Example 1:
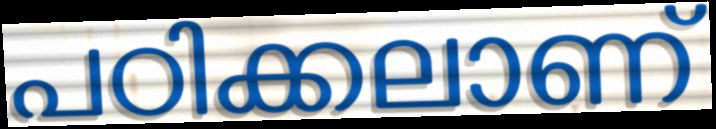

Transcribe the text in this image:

പഠിക്കലാണ്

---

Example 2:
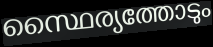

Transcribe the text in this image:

സ്ഥൈര്യത്തോടും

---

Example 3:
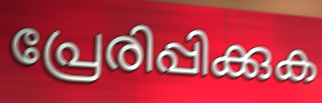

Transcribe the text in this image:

പ്രേരിപ്പിക്കുക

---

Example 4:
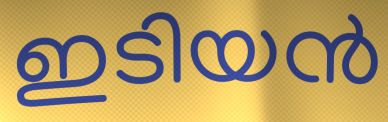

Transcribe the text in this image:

ഇടിയൻ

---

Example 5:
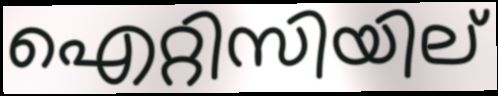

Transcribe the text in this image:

ഐറ്റിസിയില്